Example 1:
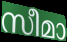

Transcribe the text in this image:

സീമാ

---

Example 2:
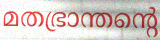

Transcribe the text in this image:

മതഭ്രാന്തന്റെ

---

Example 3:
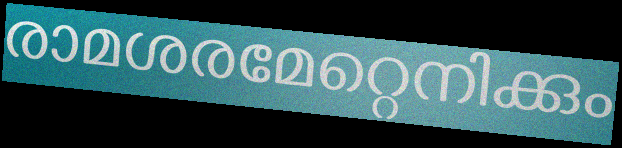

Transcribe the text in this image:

രാമശരമേറ്റെനിക്കും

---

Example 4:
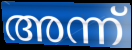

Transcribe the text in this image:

അന്ന്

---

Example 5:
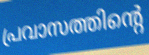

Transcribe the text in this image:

പ്രവാസത്തിന്റെ